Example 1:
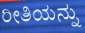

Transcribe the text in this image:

ರೀತಿಯನ್ನು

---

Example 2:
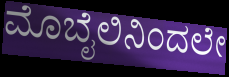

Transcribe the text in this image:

ಮೊಬೈಲಿನಿಂದಲೇ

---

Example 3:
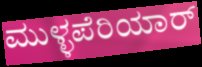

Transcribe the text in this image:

ಮುಳ್ಳಪೆರಿಯಾರ್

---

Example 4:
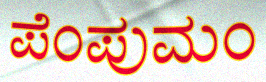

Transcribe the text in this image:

ಪೆಂಪುಮಂ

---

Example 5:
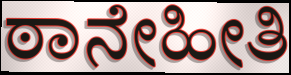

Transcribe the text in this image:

ಠಾನೇಹೀತಿ